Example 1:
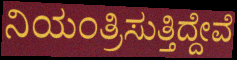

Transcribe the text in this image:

ನಿಯಂತ್ರಿಸುತ್ತಿದ್ದೇವೆ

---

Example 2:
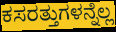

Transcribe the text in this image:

ಕಸರತ್ತುಗಳನ್ನೆಲ್ಲ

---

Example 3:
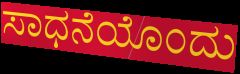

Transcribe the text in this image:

ಸಾಧನೆಯೊಂದು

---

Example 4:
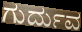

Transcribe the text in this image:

ಗುರ್ದುವ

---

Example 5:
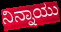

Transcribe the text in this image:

ನಿನ್ನಾಯು